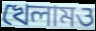
খেলামও